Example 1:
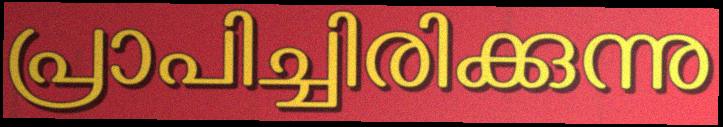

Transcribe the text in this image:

പ്രാപിച്ചിരിക്കുന്നു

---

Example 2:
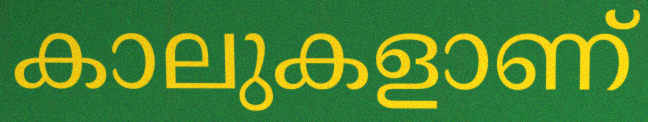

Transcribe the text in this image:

കാലുകളാണ്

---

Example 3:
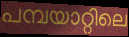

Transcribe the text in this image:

പമ്പയാറ്റിലെ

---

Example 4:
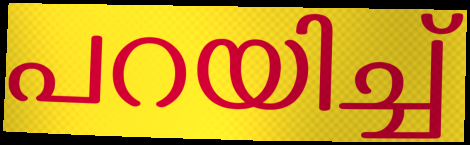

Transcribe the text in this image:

പറയിച്ച്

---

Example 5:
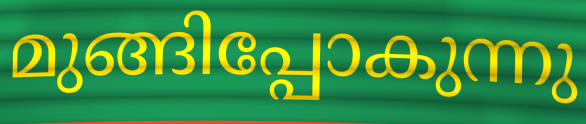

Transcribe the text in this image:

മുങ്ങിപ്പോകുന്നു